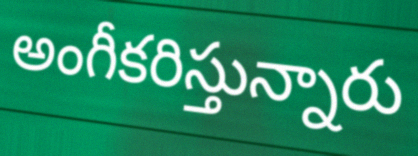
అంగీకరిస్తున్నారు